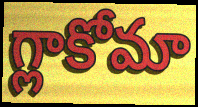
గ్లాకోమా